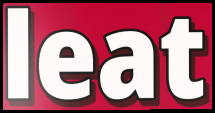
leat